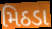
મિઠડા